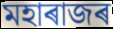
মহাৰাজৰ